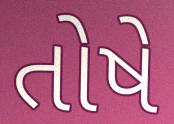
તોષે